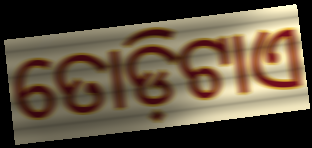
ତୋଡ଼ିଟାଏ